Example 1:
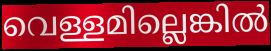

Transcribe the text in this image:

വെള്ളമില്ലെങ്കിൽ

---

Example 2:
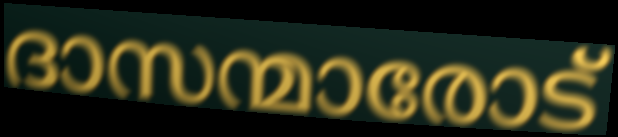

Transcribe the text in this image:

ദാസന്മാരോട്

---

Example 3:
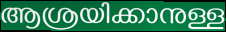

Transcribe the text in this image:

ആശ്രയിക്കാനുള്ള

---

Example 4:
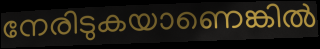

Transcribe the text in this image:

നേരിടുകയാണെങ്കിൽ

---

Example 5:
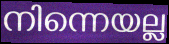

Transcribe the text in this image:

നിന്നെയല്ല